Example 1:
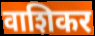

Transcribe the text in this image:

वाशिकर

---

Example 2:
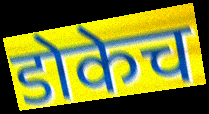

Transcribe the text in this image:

डोकेच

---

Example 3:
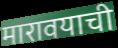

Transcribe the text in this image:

मारावयाची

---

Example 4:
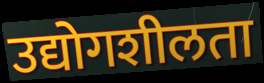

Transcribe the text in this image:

उद्योगशीलता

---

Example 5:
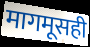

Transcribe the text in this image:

मागमूसही